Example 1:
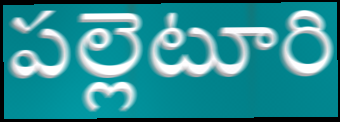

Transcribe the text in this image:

పల్లెటూరి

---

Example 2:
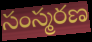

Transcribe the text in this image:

సంస్మరణ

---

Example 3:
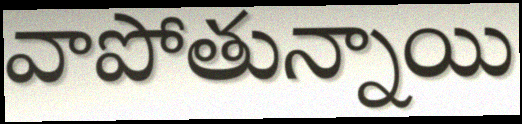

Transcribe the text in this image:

వాపోతున్నాయి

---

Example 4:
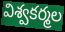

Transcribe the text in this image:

విశ్వకర్మల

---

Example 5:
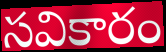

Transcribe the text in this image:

సవికారం